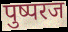
पुष्परज